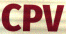
CPV